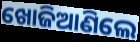
ଖୋଜିଆଣିଲେ